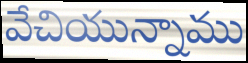
వేచియున్నాము